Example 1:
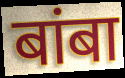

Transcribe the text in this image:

बांबा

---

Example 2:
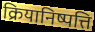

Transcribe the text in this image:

क्रियानिष्पत्ति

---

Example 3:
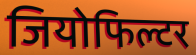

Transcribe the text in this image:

जियोफिल्टर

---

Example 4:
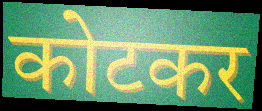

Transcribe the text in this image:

कोटकर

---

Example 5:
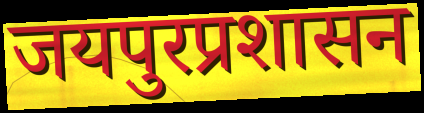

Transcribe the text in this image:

जयपुरप्रशासन